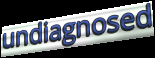
undiagnosed